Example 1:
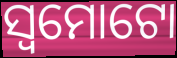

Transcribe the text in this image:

ସ୍ୱମୋଟୋ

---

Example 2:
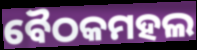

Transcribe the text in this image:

ବୈଠକମହଲ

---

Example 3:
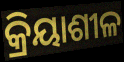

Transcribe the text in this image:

କ୍ରିୟାଶୀଳ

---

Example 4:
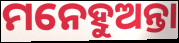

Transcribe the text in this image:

ମନେହୁଅନ୍ତା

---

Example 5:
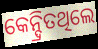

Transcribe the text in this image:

କେନ୍ଦ୍ରିତଥିଲେ